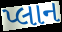
પ્લાન